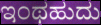
ಇಂಥಹುದು